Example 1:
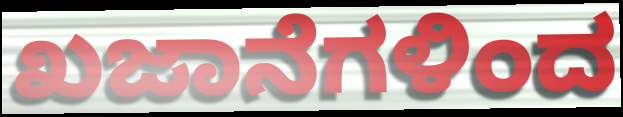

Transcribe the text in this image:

ಖಜಾನೆಗಳಿಂದ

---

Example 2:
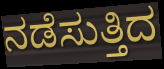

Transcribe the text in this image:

ನಡೆಸುತ್ತಿದ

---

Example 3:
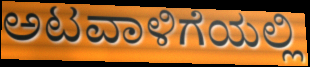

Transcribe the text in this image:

ಅಟವಾಳಿಗೆಯಲ್ಲಿ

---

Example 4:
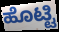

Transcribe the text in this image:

ಹೊಟ್ಟಿ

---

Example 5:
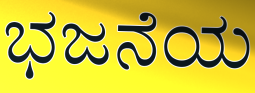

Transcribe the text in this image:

ಭಜನೆಯ